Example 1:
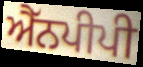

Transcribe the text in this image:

ਐੱਨਪੀਪੀ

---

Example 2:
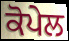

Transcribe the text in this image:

ਕੋਪੇਲ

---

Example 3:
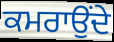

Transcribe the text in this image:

ਕਮਰਾਉਂਦੇ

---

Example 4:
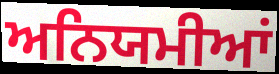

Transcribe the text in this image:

ਅਨਿਯਮੀਆਂ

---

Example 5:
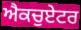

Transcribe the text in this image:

ਐਕਚੁਏਟਰ